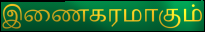
இணைகரமாகும்